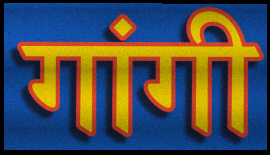
गांगी